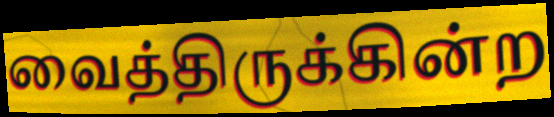
வைத்திருக்கின்ற